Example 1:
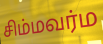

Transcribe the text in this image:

சிம்மவர்ம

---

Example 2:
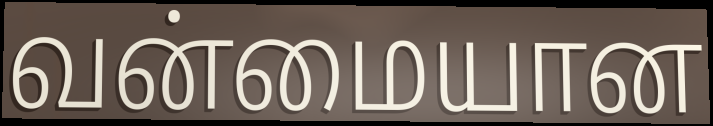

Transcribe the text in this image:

வன்மையான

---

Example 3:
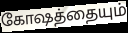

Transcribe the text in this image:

கோஷத்தையும்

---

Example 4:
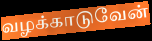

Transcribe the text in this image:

வழக்காடுவேன்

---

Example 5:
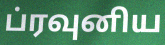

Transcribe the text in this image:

ப்ரவுனிய